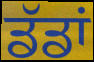
ਡੱਡਾਂ